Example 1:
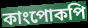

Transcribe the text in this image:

কাংপোকপি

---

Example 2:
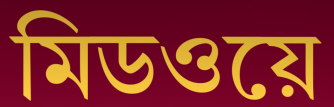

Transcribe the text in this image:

মিডওয়ে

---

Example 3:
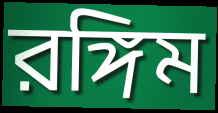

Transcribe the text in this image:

রঙ্গিম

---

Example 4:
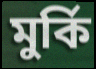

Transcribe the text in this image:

মুর্কি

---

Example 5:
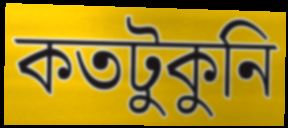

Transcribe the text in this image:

কতটুকুনি